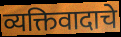
व्यक्तिवादाचे